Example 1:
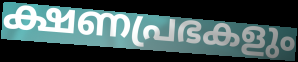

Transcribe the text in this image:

ക്ഷണപ്രഭകളും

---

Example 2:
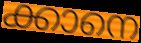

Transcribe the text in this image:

ക്കാനെ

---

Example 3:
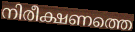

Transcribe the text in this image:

നിരീക്ഷണത്തെ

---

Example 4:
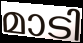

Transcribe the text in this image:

മാടി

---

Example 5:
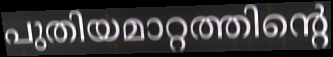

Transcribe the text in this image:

പുതിയമാറ്റത്തിന്റെ